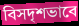
বিসদৃশভাবে